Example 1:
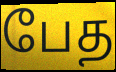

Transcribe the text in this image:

பேத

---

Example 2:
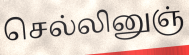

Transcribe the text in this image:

செல்லினுஞ்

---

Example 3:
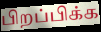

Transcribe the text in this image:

பிறப்பிக்க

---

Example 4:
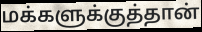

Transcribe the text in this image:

மக்களுக்குத்தான்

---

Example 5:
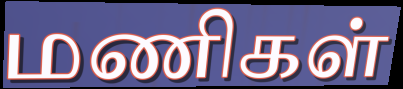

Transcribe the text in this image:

மணிகள்